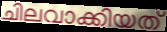
ചിലവാക്കിയത്